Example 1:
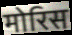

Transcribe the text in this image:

मोरिस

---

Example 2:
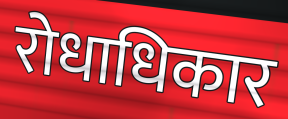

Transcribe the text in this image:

रोधाधिकार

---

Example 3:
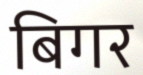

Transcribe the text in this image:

बिगर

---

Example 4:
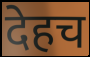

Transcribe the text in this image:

देहच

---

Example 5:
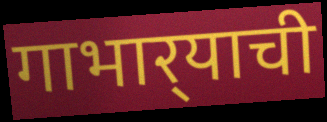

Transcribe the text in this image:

गाभार्‍याची